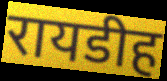
रायडीह